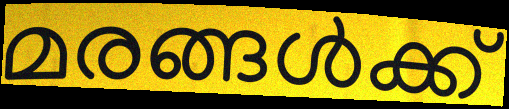
മരങ്ങൾക്ക്